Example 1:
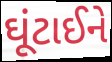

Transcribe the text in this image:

ઘૂંટાઈને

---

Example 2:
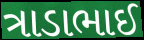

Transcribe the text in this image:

ત્રાડાભાઈ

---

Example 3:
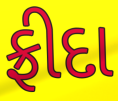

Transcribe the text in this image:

ફ્રીદા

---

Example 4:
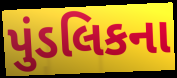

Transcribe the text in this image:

પુંડલિકના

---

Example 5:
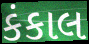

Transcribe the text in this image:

કંકાલ